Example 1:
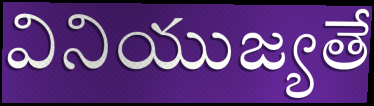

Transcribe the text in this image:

వినియుజ్యతే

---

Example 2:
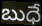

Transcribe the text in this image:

బుధే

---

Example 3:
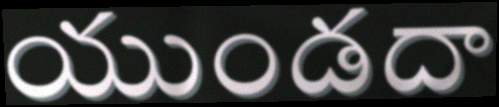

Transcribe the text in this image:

యుండదా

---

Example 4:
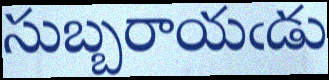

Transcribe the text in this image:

సుబ్బరాయఁడు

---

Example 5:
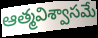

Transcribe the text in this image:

ఆత్మవిశ్వాసమే